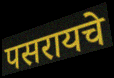
पसरायचे